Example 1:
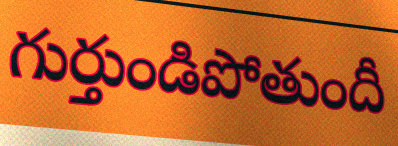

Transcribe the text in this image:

గుర్తుండిపోతుందీ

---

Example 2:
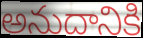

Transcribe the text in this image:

అనుదానికి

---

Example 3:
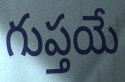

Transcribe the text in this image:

గుప్తయే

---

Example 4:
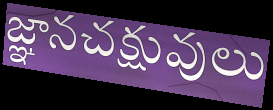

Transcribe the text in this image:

జ్ఞానచక్షువులు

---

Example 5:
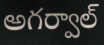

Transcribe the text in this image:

అగర్వాల్